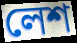
লেশ